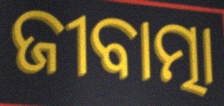
ଜୀବାତ୍ମା